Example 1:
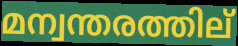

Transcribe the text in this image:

മന്വന്തരത്തില്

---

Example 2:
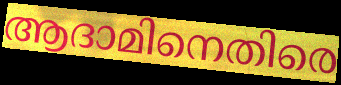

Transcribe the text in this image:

ആദാമിനെതിരെ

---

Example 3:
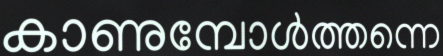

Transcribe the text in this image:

കാണുമ്പോൾത്തന്നെ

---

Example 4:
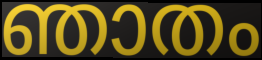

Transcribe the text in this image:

ഞാതം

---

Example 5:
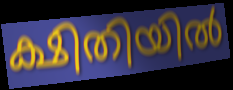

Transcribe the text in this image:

ക്ഷിതിയിൽ